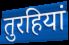
तुरहियां